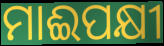
ମାଈପକ୍ଷୀ